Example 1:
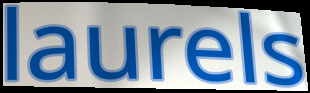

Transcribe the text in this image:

laurels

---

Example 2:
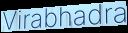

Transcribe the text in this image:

Virabhadra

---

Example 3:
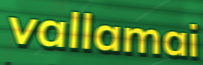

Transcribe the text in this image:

vallamai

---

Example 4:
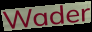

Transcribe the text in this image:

Wader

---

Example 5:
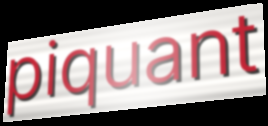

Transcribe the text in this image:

piquant